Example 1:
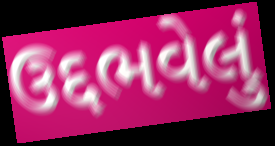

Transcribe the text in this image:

ઉદ્દભવેલું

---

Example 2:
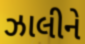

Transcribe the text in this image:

ઝાલીને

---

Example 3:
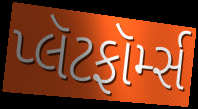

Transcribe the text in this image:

પ્લૅટફૉર્મ્સ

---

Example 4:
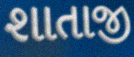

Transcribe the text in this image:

શાતાજી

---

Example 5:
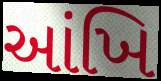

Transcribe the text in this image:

આંખિ